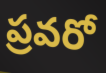
ప్రవరో